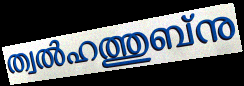
ത്വൽഹത്തുബ്നു